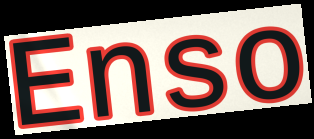
Enso